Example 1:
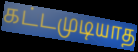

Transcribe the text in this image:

கட்டமுடியாத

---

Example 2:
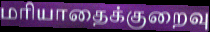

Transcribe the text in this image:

மரியாதைக்குறைவு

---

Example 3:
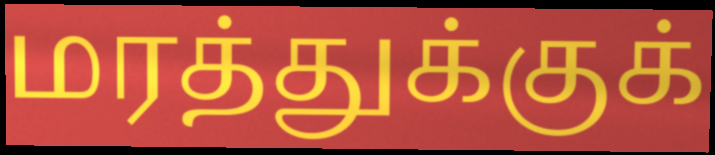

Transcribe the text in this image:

மரத்துக்குக்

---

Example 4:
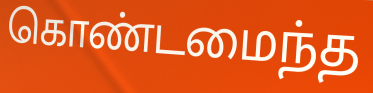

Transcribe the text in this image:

கொண்டமைந்த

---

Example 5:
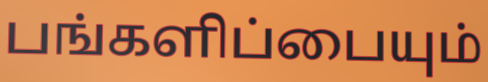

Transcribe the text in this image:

பங்களிப்பையும்